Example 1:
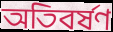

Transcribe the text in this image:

অতিবর্ষণ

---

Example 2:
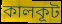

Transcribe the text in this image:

কালকূট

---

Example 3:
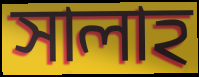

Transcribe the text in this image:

সালাহ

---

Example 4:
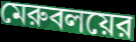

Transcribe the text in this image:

মেরুবলয়ের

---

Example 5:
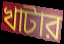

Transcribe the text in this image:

খাটার